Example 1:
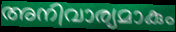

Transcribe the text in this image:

അനിവാര്യമാകും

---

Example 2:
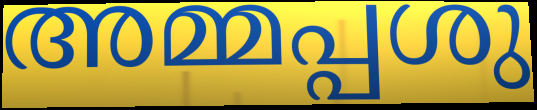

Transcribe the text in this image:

അമ്മപ്പശു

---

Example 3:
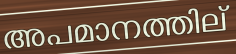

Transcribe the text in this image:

അപമാനത്തില്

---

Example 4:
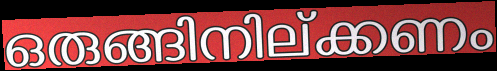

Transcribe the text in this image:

ഒരുങ്ങിനില്ക്കണം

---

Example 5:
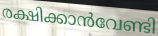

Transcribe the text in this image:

രക്ഷിക്കാൻവേണ്ടി